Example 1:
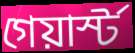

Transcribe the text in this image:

গেয়ার্স্ট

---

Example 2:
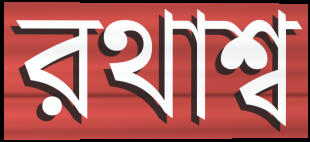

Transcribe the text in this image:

রথাশ্ব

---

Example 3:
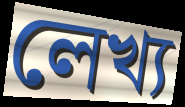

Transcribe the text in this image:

লেখ্য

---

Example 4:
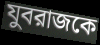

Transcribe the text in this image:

যুবরাজকে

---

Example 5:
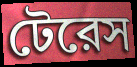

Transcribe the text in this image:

টেরেস